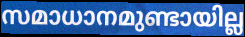
സമാധാനമുണ്ടായില്ല